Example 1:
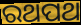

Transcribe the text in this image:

ରଥପଥ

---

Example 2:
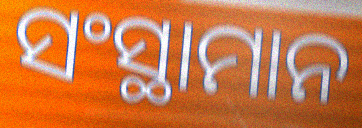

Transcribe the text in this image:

ସଂସ୍ଥାମାନ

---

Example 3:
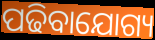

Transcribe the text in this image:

ପଢିବାଯୋଗ୍ୟ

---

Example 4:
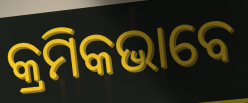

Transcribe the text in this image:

କ୍ରମିକଭାବେ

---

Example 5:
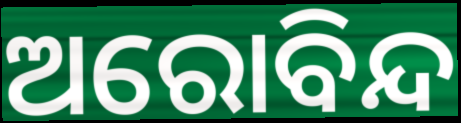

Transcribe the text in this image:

ଅରୋବିନ୍ଦ